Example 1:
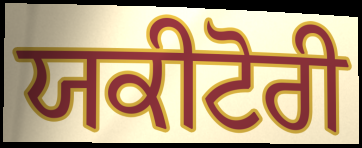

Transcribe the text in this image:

ਯਕੀਟੋਰੀ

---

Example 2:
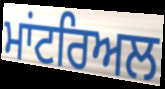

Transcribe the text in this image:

ਮਾਂਟਰਿਅਲ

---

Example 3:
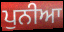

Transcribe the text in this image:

ਪੁਨੀਆ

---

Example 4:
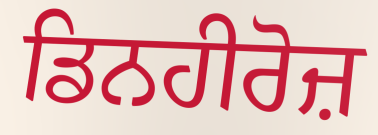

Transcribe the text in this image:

ਡਿਨਹੀਰੋਜ਼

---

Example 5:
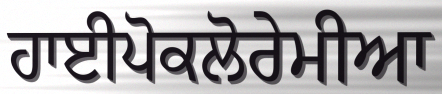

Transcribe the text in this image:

ਹਾਈਪੋਕਲੋਰੇਮੀਆ